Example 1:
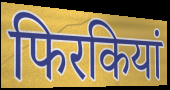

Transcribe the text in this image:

फिरकियां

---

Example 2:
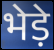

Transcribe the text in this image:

भेड़े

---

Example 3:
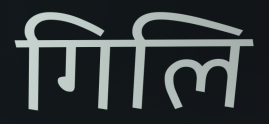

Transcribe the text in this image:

गिलि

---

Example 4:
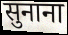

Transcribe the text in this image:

सुनाना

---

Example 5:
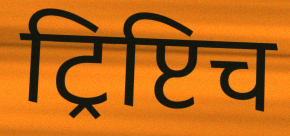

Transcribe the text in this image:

ट्रिप्टिच